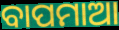
ବାପମାଆ